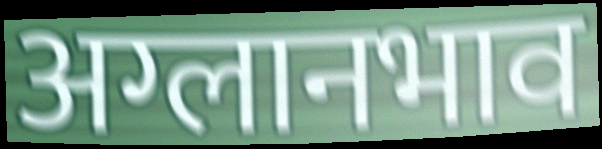
अग्लानभाव